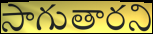
సాగుతారని